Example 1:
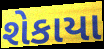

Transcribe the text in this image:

શેકાયા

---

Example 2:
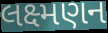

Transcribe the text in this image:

લક્ષ્મણન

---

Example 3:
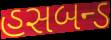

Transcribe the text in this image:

હસબન્ડ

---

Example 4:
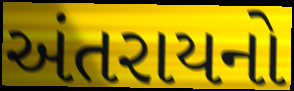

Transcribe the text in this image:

અંતરાયનો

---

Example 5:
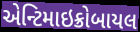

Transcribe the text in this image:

એન્ટિમાઇક્રોબાયલ